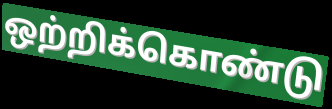
ஒற்றிக்கொண்டு